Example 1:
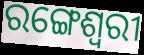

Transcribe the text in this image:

ରଙ୍ଗେଶ୍ୱରୀ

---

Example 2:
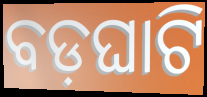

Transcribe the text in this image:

ବଡ଼ଘାଟି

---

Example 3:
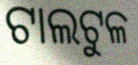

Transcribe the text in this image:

ଟାଲଟୁଳ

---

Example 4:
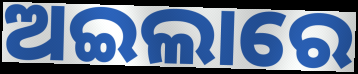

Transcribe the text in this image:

ଅଇଲାରେ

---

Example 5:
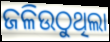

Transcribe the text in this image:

ଜଳିଉଠୁଥିଲା